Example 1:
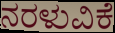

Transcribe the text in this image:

ನರಳುವಿಕೆ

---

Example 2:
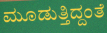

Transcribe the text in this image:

ಮೂಡುತ್ತಿದ್ದಂತೆ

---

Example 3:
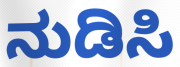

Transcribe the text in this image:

ನುಡಿಸಿ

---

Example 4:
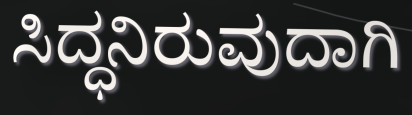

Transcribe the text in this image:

ಸಿದ್ಧನಿರುವುದಾಗಿ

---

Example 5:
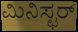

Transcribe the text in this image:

ಮಿನಿಸ್ಟರ್